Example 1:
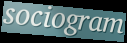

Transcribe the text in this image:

sociogram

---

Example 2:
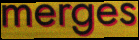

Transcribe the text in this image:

merges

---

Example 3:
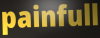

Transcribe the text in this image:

painfull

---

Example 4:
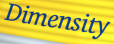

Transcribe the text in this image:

Dimensity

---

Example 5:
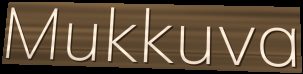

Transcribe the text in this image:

Mukkuva